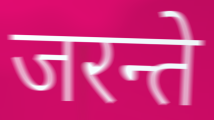
जरन्ते